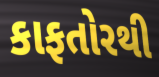
કાફતોરથી